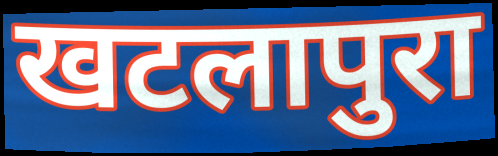
खटलापुरा